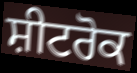
ਸ਼ੀਟਰੋਕ